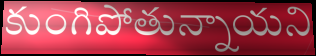
కుంగిపోతున్నాయని